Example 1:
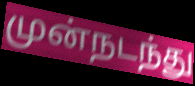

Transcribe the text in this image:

முன்நடந்து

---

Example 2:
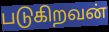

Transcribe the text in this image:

படுகிறவன்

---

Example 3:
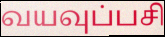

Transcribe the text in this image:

வயவுப்பசி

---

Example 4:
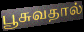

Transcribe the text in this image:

பூசுவதால்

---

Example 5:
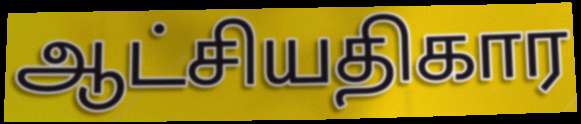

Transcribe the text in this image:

ஆட்சியதிகார